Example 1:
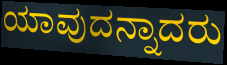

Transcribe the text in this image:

ಯಾವುದನ್ನಾದರು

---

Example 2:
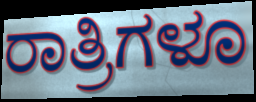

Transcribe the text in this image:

ರಾತ್ರಿಗಳೂ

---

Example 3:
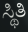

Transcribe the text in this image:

ಸ್ಥಿತಿ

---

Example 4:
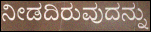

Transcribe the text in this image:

ನೀಡದಿರುವುದನ್ನು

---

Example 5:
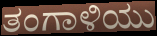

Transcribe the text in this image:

ತಂಗಾಳಿಯು